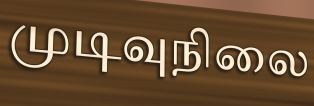
முடிவுநிலை